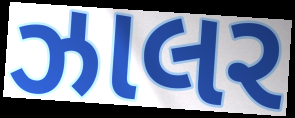
ઝાલર